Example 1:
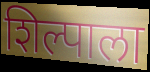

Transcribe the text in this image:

शिल्पाला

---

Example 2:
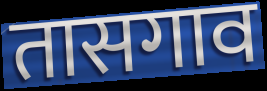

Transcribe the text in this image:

तासगाव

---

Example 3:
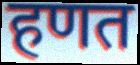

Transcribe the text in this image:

हणत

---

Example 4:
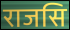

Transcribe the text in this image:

राजसि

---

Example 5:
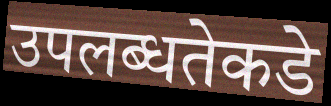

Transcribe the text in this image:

उपलब्धतेकडे